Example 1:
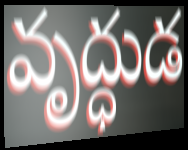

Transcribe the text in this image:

వృద్ధుడ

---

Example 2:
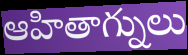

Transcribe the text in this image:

ఆహితాగ్నులు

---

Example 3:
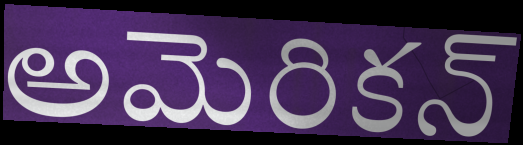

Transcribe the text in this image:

అమెరికన్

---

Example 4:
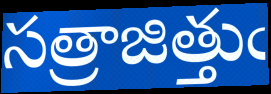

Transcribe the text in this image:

సత్రాజిత్తుఁ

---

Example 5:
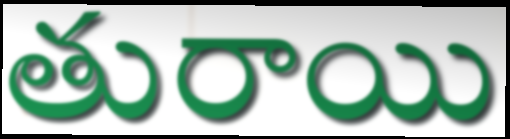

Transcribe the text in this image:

తురాయి